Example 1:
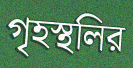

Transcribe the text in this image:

গৃহস্থলির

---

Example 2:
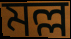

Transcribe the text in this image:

মল্ল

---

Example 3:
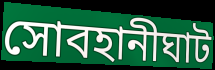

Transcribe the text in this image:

সোবহানীঘাট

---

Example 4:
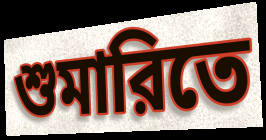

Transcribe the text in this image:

শুমারিতে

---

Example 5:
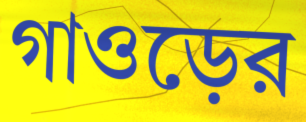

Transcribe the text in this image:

গাওড়ের